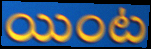
యింట